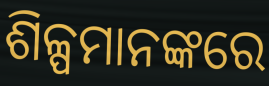
ଶିଳ୍ପମାନଙ୍କରେ